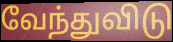
வேந்துவிடு